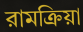
রামক্রিয়া